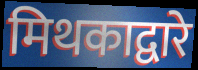
मिथकाद्वारे